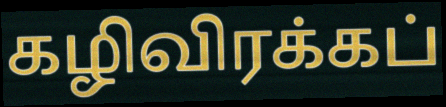
கழிவிரக்கப்